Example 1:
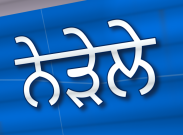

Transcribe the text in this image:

ਨੇੜੇਲੇ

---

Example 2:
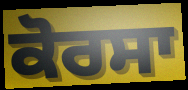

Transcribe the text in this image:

ਕੋਰਸਾ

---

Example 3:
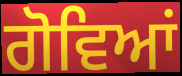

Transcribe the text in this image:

ਗੋਵਿਆਂ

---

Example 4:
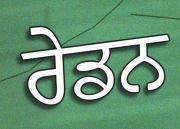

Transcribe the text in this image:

ਰੇਡਨ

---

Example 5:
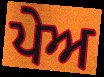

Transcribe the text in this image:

ਪੇਅ